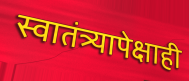
स्वातंत्र्यापेक्षाही